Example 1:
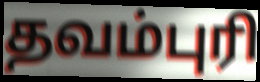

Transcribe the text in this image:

தவம்புரி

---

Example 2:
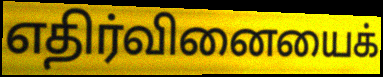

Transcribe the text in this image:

எதிர்வினையைக்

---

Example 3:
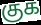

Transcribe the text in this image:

குக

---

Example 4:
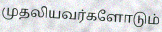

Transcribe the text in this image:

முதலியவர்களோடும்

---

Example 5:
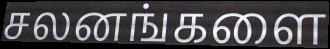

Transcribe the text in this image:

சலனங்களை